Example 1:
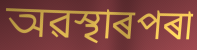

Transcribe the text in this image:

অৱস্থাৰপৰা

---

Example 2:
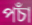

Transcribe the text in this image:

পচাঁ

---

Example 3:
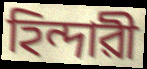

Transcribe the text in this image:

হিন্দাৱী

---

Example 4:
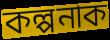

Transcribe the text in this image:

কল্পনাক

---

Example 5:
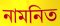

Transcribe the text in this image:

নামনিত